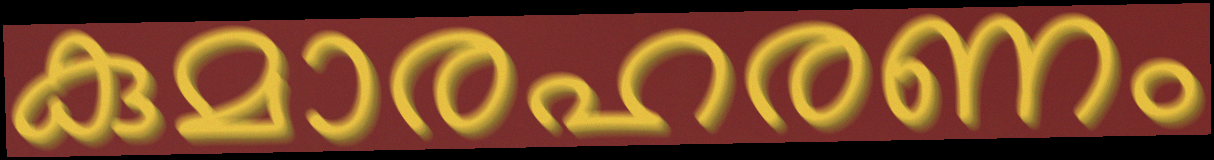
കുമാരഹരണം